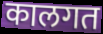
कालगत